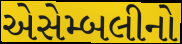
એસેમ્બલીનો